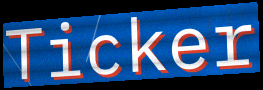
Ticker